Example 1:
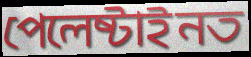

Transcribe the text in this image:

পেলেষ্টাইনত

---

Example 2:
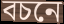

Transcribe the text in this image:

বচনে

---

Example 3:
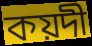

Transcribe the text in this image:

কয়দী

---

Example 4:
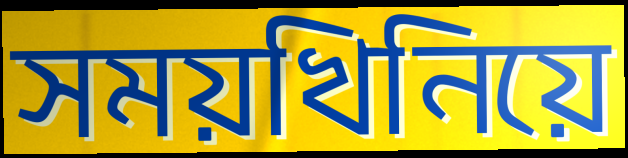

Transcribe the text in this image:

সময়খিনিয়ে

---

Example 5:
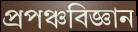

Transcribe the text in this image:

প্ৰপঞ্চবিজ্ঞান